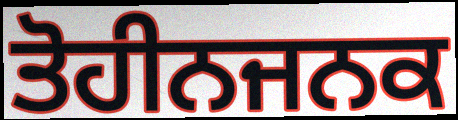
ਤੋਹੀਨਜਨਕ